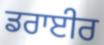
ਡਰਾਈਰ